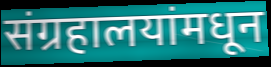
संग्रहालयांमधून